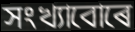
সংখ্যাবোৰে